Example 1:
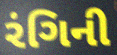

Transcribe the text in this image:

રંગિની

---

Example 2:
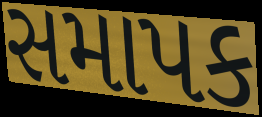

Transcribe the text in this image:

સમાપક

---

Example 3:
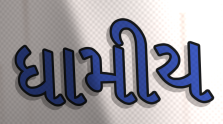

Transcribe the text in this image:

ધામીય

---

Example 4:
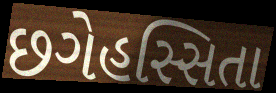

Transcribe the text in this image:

છગેહસ્સિતા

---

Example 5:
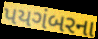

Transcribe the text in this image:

પયગંબરના